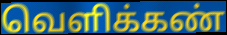
வெளிக்கண்